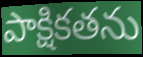
పాక్షికతను